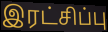
இரட்சிப்பு